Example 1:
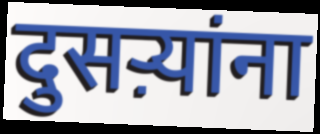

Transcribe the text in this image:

दुसऱ्‍यांना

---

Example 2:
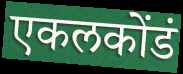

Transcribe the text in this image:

एकलकोंडं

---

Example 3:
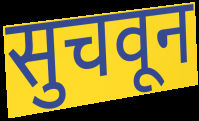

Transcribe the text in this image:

सुचवून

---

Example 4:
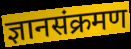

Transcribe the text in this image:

ज्ञानसंक्रमण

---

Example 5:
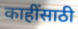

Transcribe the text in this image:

काहींसाठी